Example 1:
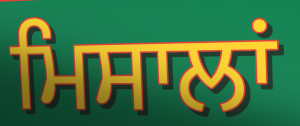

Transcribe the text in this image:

ਮਿਸਾਲਾਂ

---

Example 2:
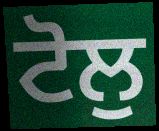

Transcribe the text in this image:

ਟੋਲੁ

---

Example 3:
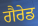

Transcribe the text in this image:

ਗੈਰੇਡ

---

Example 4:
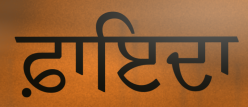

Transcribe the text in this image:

ਫ਼ਾਇਦਾ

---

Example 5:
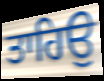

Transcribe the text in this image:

ਤਾਹਿਉ